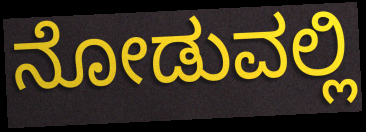
ನೋಡುವಲ್ಲಿ